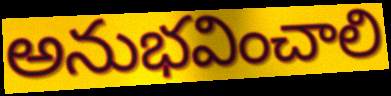
అనుభవించాలి